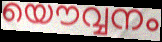
യൌവ്വനം